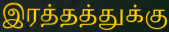
இரத்தத்துக்கு